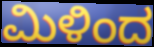
ಮಿಳಿಂದ